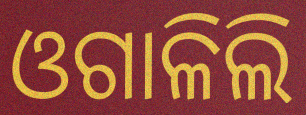
ଓଗାଳିଲି